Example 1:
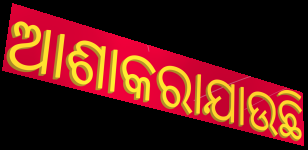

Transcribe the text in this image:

ଆଶାକରାଯାଉଛି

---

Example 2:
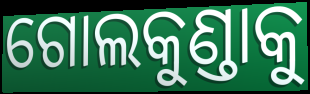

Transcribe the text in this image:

ଗୋଲକୁଣ୍ଡାକୁ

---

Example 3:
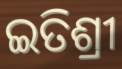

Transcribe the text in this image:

ଇତିଶ୍ରୀ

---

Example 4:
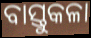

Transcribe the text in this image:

ବାସ୍ତୁକଳା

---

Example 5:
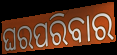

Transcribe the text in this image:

ଘରପରିବାର